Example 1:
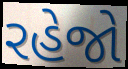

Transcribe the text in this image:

રહેજો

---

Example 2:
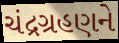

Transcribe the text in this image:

ચંદ્રગ્રહણને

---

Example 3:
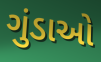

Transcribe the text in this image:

ગુંડાઓ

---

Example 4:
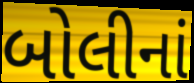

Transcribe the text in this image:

બોલીનાં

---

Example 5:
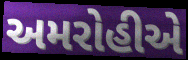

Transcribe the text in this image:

અમરોહીએ